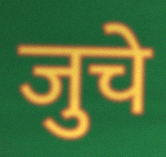
जुचे